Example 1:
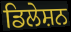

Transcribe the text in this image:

ਡਿਲੇਸ਼ਨ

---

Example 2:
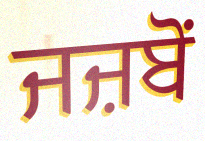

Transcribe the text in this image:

ਜਜ਼ਬੋਂ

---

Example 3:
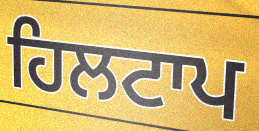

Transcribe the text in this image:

ਹਿਲਟਾਪ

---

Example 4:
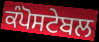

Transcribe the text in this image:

ਕੰਪੋਸਟੇਬਲ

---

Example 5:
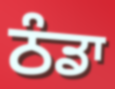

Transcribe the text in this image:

ਠੰਡਾ